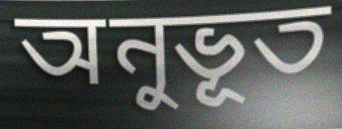
অনুভূত